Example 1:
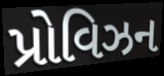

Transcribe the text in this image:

પ્રોવિઝન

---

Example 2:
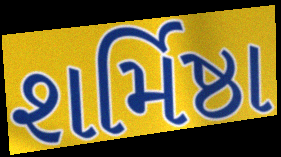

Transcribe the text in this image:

શર્મિષ્ઠા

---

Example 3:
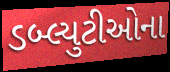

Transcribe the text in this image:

ડબ્લ્યુટીઓના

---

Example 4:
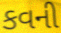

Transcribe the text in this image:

કવની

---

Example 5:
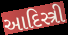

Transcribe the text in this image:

આદિસ્ત્રી